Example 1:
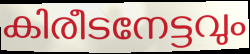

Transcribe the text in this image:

കിരീടനേട്ടവും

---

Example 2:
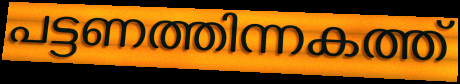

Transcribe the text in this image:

പട്ടണത്തിന്നകത്ത്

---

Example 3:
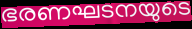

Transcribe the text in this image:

ഭരണഘടനയുടെ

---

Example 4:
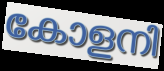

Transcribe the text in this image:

കോളനി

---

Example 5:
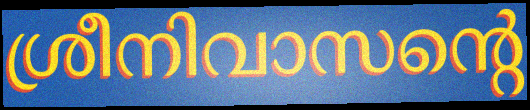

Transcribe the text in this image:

ശ്രീനിവാസന്റെ